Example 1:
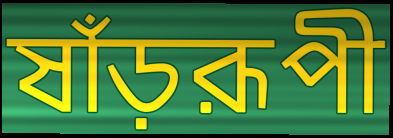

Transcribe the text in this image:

ষাঁড়রূপী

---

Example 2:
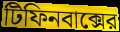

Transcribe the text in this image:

টিফিনবাক্সের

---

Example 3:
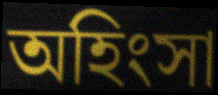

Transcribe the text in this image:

অহিংসা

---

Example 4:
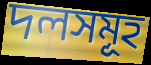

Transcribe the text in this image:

দলসমূহ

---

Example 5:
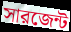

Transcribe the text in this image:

সারজেন্ট